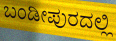
ಬಂಡೀಪುರದಲ್ಲಿ